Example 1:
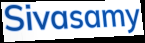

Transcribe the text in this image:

Sivasamy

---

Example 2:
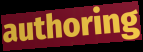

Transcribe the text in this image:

authoring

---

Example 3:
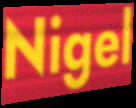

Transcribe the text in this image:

Nigel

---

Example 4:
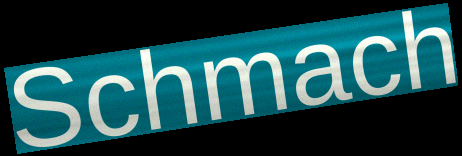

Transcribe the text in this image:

Schmach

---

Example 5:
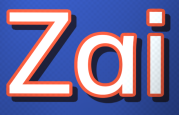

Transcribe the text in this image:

Zai